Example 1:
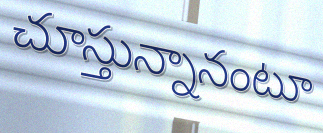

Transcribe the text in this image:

చూస్తున్నానంటూ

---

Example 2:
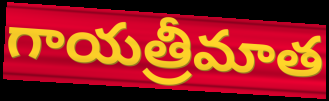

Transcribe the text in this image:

గాయత్రీమాత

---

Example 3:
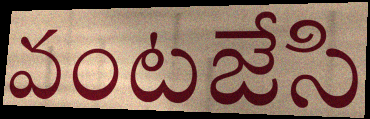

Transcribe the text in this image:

వంటజేసి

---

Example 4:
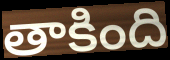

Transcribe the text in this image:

తాకింది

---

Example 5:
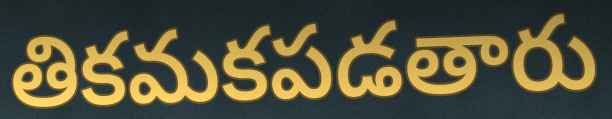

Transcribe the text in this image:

తికమకపడతారు